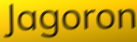
Jagoron